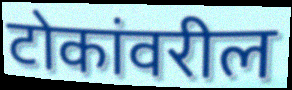
टोकांवरील